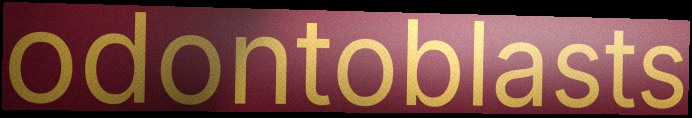
odontoblasts